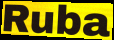
Ruba